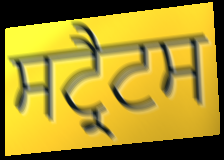
ਸਟ੍ਰੈਟਸ